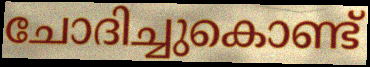
ചോദിച്ചുകൊണ്ട്